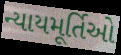
ન્યાયમૂર્તિઓ